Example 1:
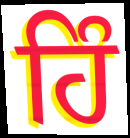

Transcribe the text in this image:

ਹਿੰ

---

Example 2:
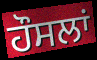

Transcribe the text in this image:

ਹੌਸਲਾਂ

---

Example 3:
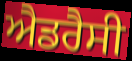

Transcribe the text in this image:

ਐਡਰੈਸੀ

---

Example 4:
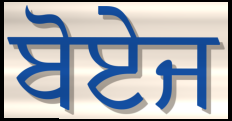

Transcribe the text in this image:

ਬੋਏਜ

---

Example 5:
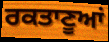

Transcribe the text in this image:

ਰਕਤਾਣੂਆਂ